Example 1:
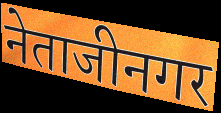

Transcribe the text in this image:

नेताजीनगर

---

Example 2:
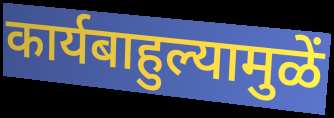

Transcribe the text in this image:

कार्यबाहुल्यामुळें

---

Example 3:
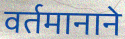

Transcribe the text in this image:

वर्तमानाने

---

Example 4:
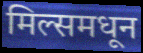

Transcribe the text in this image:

मिल्समधून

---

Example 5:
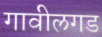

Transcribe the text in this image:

गावीलगड